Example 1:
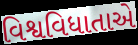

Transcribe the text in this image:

વિશ્વવિધાતાએ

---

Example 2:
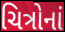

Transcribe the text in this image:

ચિત્રોનાં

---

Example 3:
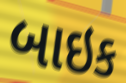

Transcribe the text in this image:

બાઇક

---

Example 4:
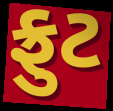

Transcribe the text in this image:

ફ્રુટ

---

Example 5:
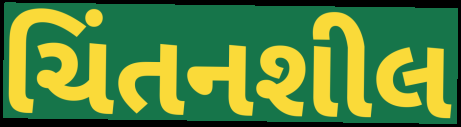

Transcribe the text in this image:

ચિંતનશીલ